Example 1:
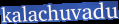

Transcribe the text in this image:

kalachuvadu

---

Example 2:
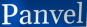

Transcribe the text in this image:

Panvel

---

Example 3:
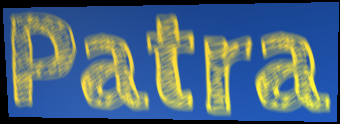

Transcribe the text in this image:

Patra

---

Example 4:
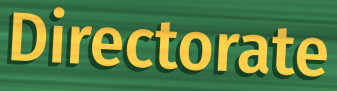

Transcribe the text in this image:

Directorate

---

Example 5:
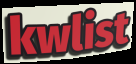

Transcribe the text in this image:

kwlist